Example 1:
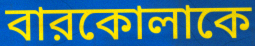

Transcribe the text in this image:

বারকোলাকে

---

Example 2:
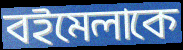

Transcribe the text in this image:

বইমেলাকে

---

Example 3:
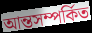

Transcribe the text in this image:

আন্তসম্পর্কিত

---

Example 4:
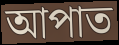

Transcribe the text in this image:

আপাত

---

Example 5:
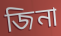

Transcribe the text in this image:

জিনা